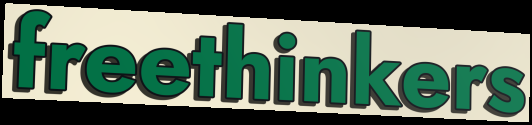
freethinkers